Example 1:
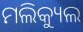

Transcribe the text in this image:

ମଲିକ୍ୟୁଲ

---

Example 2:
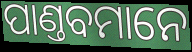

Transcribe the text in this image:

ପାଣ୍ତବମାନେ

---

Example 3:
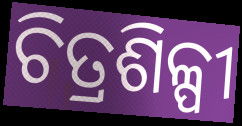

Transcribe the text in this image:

ଚିତ୍ରଶିଳ୍ପୀ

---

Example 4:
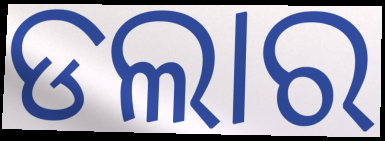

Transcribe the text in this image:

ଡଲାର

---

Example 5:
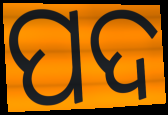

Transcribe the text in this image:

ପଦ